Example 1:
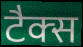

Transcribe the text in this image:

टैक्‍स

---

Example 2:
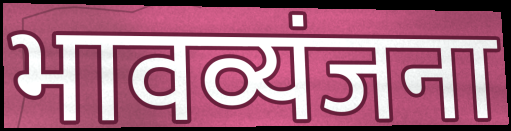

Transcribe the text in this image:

भावव्यंजना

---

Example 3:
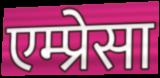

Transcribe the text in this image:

एम्प्रेसा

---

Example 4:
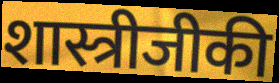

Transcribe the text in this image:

शास्त्रीजीकी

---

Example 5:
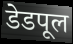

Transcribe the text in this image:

डेडपूल